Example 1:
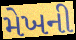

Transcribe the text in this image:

મેખની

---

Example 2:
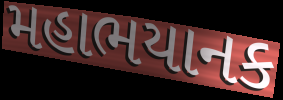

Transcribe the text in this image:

મહાભયાનક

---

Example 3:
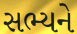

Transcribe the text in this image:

સભ્યને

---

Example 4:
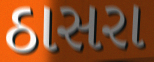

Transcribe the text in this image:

ઠાસરા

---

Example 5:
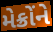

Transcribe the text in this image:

મેક્રોંને